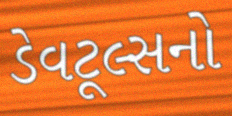
ડેવટૂલ્સનો